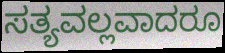
ಸತ್ಯವಲ್ಲವಾದರೂ